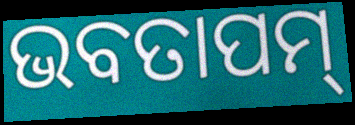
ଭବତାପମ୍